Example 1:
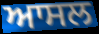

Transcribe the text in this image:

ਆਸਲ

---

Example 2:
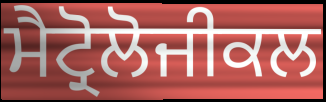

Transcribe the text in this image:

ਮੈਟ੍ਰੋਲੋਜੀਕਲ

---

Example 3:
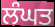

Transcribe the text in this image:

ਲੰਘਤ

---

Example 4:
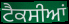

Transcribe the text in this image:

ਟੈਕਸੀਆਂ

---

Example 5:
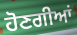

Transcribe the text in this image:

ਹੋਣਗੀਆਂ